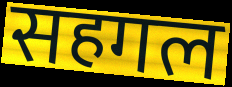
सहगल